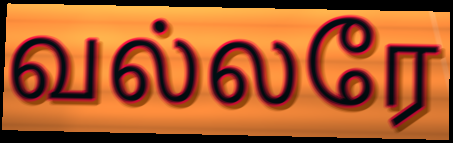
வல்லரே